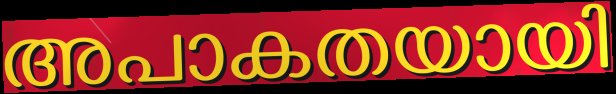
അപാകതയായി